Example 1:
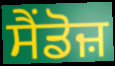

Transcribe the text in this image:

ਸੈਂਡੋਜ਼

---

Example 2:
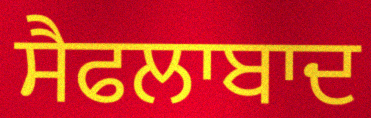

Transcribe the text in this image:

ਸੈਫਲਾਬਾਦ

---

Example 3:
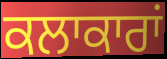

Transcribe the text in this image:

ਕਲਾਕਾਰਾਂ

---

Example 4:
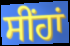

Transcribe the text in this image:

ਸੀਂਹਾਂ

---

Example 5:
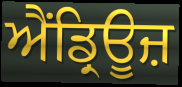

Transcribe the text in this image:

ਐਂਡ੍ਰਿਊਜ਼